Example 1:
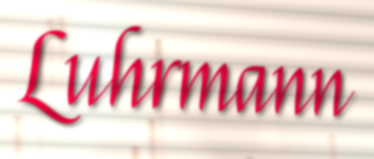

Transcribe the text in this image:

Luhrmann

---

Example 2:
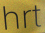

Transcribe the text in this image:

hrt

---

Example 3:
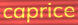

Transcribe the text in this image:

caprice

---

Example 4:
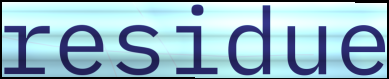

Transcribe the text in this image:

residue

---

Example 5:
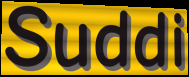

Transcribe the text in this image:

Suddi